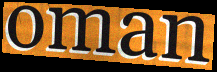
oman